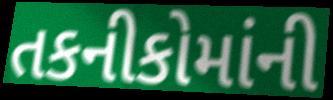
તકનીકોમાંની